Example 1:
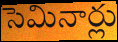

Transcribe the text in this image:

సెమినార్లు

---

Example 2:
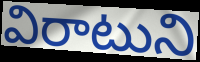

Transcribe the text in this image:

విరాటుని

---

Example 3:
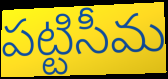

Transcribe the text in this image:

పట్టిసీమ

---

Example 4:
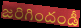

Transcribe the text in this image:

జరిగిందండీ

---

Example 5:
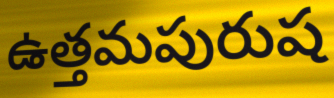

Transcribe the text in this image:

ఉత్తమపురుష